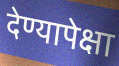
देण्यापेक्षा